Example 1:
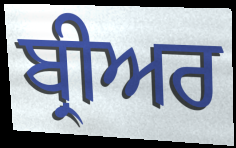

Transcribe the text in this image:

ਬ੍ਰੀਅਰ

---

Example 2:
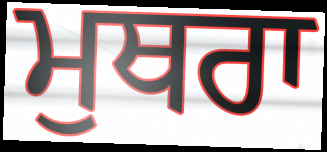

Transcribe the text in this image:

ਮੁਥਰਾ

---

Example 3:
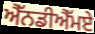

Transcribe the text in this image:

ਐੱਨਡੀਐੱਮਏ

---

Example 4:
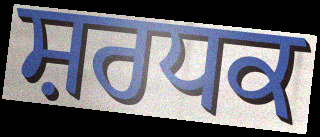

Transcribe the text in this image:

ਸ਼ਰਧਕ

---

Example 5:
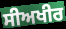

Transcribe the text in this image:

ਸੀਅਖੀਰ